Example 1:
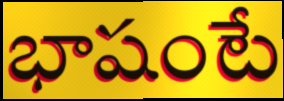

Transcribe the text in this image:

భాషంటే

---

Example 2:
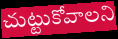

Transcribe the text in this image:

చుట్టుకోవాలని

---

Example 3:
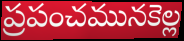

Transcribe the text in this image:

ప్రపంచమునకెల్ల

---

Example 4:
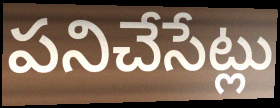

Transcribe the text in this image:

పనిచేసేట్లు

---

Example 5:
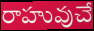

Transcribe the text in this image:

రాహువుచే